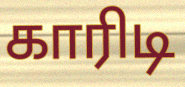
காரிடி